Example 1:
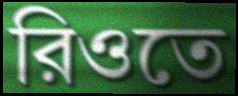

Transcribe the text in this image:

রিওতে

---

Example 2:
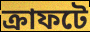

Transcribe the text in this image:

ক্রাফটে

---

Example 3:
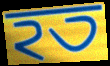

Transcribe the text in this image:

হত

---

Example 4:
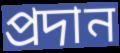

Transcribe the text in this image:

প্রদান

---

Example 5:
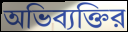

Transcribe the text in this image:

অভিব্যক্তির